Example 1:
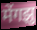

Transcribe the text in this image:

मेंगझु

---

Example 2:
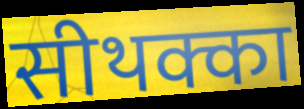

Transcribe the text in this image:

सीथक्का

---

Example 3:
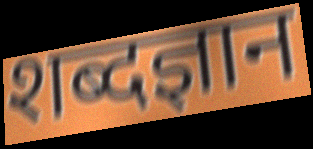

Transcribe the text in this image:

शब्दज्ञान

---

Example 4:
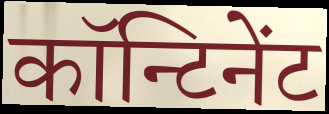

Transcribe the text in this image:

कॉन्टिनेंट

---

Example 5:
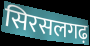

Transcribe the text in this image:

सिरसलगढ़